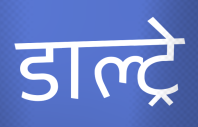
डाल्ट्रे